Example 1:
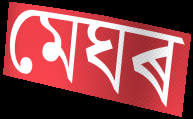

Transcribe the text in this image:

মেঘৰ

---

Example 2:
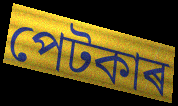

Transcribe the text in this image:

পেটকাৰ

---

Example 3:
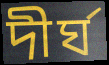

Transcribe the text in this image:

দীৰ্ঘ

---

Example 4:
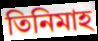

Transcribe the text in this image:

তিনিমাহ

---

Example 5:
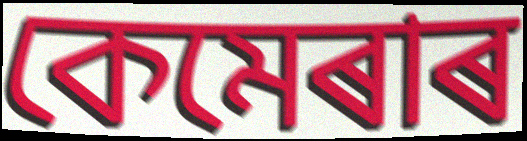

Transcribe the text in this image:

কেমেৰাৰ